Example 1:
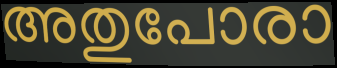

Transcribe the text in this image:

അതുപോരാ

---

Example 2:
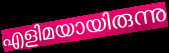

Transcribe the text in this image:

എളിമയായിരുന്നു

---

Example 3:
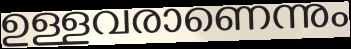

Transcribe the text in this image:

ഉള്ളവരാണെന്നും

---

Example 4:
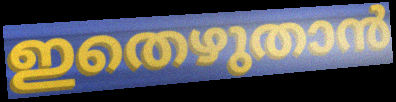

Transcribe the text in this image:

ഇതെഴുതാൻ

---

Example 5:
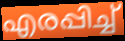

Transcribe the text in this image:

എരപ്പിച്ച്